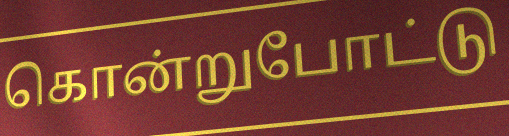
கொன்றுபோட்டு